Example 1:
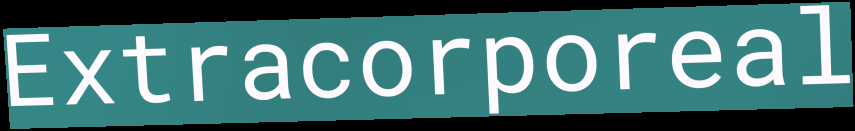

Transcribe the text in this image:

Extracorporeal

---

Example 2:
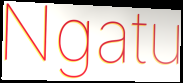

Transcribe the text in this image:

Ngatu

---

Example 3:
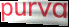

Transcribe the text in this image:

purva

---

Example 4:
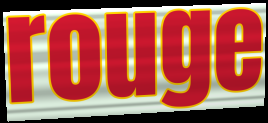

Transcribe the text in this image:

rouge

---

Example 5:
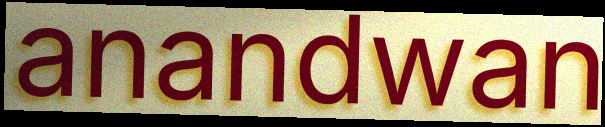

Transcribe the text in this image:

anandwan